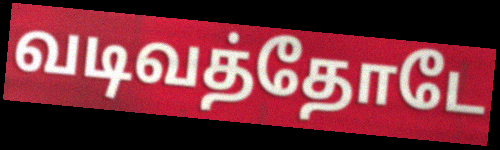
வடிவத்தோடே